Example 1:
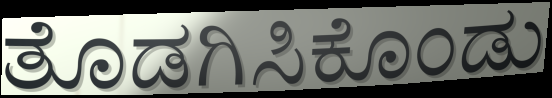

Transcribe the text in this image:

ತೊಡಗಿಸಿಕೊಂಡು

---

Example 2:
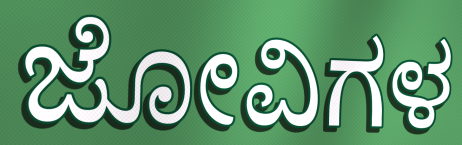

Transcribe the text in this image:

ಜೋವಿಗಳ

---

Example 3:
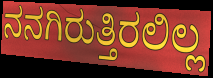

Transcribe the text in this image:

ನನಗಿರುತ್ತಿರಲಿಲ್ಲ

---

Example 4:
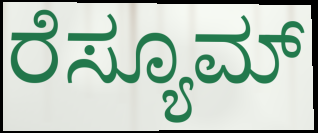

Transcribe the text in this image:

ರೆಸ್ಯೂಮ್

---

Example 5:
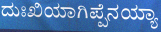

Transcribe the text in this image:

ದುಃಖಿಯಾಗಿಪ್ಪೆನಯ್ಯಾ